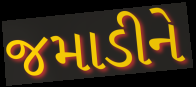
જમાડીને